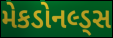
મેકડોનલ્ડ્સ